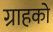
ग्राहको